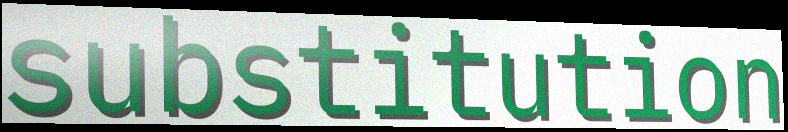
substitution